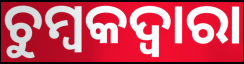
ଚୁମ୍ବକଦ୍ବାରା